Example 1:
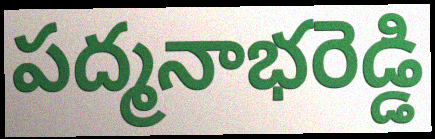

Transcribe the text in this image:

పద్మనాభరెడ్డి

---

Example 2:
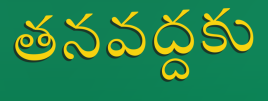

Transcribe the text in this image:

తనవద్దకు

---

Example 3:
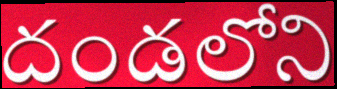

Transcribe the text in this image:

దండలోని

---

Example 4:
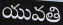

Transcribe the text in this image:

యువతి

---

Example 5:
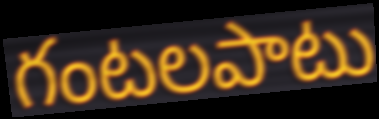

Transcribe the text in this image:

గంటలపాటు